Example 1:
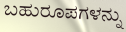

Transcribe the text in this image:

ಬಹುರೂಪಗಳನ್ನು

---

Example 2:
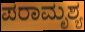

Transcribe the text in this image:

ಪರಾಮೃಶ್ಯ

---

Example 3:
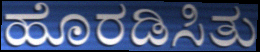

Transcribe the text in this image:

ಹೊರಡಿಸಿತು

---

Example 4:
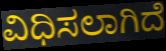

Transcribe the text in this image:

ವಿಧಿಸಲಾಗಿದೆ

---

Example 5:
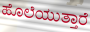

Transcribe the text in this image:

ಹೊಲೆಯುತ್ತಾರೆ